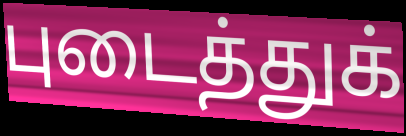
புடைத்துக்